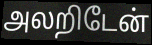
அலறிடேன்